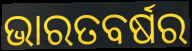
ଭାରତବର୍ଷର